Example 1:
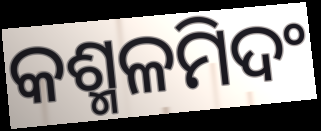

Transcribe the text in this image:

କଶ୍ମଳମିଦଂ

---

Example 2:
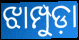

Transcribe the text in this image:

ଝାମ୍ପୁଡ଼ା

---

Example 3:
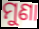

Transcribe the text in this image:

ମୁଣା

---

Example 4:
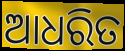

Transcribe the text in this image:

ଆଧରିତ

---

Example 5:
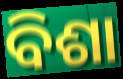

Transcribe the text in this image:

ବିଶା